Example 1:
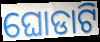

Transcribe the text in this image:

ଘୋଡାଟି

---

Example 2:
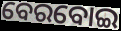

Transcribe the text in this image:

ବେରବୋଇ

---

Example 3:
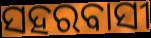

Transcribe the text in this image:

ସହରବାସୀ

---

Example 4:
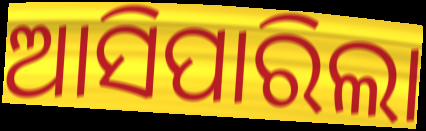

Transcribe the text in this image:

ଆସିପାରିଲା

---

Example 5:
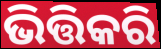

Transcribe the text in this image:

ଭିତ୍ତିକରି